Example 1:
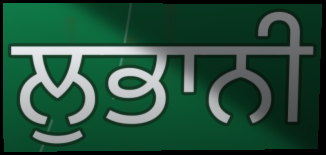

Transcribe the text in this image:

ਲੁਭਾਨੀ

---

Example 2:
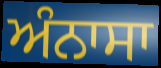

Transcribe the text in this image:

ਅੰਨਾਸਾ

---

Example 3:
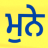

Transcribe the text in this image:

ਮੁਨੇ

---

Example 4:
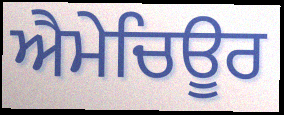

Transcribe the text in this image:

ਐਮੇਚਿਊਰ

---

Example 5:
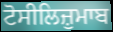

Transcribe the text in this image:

ਟੋਸੀਲਿਜ਼ੁਮਾਬ